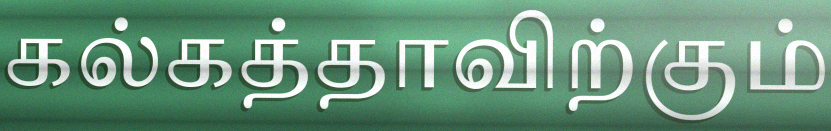
கல்கத்தாவிற்கும்